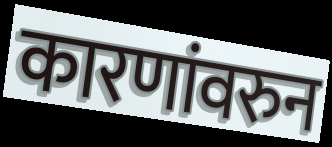
कारणांवरुन